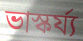
ভাস্কৰ্য্য